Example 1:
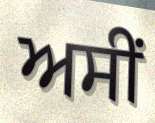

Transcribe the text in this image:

ਅਸੀੰ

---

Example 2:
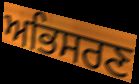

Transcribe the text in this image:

ਅਭਿਸਰਣ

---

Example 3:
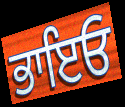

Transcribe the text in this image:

ਭਾਇਓ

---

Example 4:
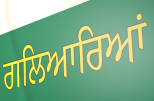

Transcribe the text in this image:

ਗਲਿਆਰਿਆਂ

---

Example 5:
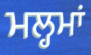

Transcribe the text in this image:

ਮਲ੍ਹਮਾਂ